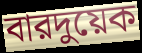
বারদুয়েক